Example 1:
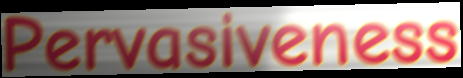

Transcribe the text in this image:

Pervasiveness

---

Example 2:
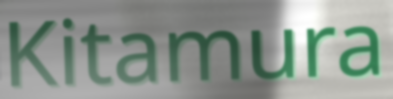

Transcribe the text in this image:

Kitamura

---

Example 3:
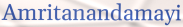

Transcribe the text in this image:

Amritanandamayi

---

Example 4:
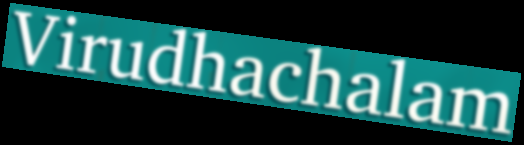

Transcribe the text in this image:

Virudhachalam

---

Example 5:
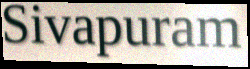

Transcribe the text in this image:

Sivapuram